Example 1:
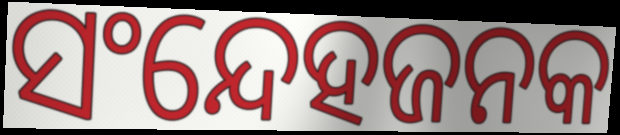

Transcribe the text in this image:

ସଂନ୍ଦେହଜନକ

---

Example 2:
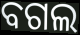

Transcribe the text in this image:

ବଗଲ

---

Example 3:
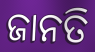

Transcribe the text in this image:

ଜାନତି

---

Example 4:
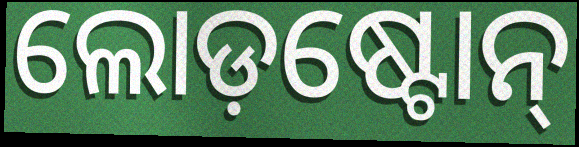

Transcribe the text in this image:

ଲୋଡ଼ଷ୍ଟୋନ୍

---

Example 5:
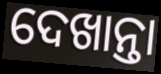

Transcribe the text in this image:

ଦେଖାନ୍ତା